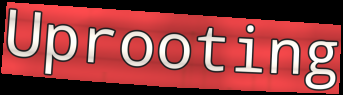
Uprooting